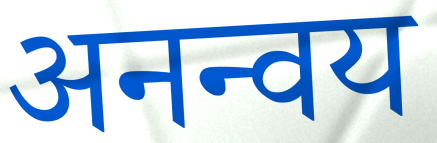
अनन्वय